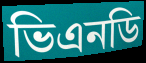
ভিএনডি